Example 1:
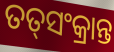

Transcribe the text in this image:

ତତ୍‌ସଂକ୍ରାନ୍ତ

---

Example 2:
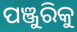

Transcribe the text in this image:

ପଞ୍ଜୁରିକୁ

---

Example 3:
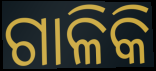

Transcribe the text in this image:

ଗାଳିକି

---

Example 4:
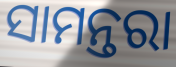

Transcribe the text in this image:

ସାମନ୍ତରା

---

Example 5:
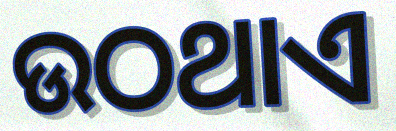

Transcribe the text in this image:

ଉଠଥାଏ